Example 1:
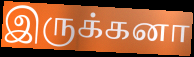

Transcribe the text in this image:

இருக்கனா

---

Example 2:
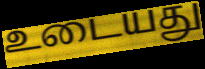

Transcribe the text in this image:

உடையது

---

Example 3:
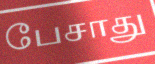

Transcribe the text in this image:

பேசாது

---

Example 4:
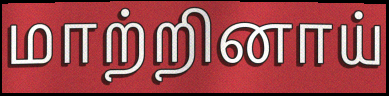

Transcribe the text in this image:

மாற்றினாய்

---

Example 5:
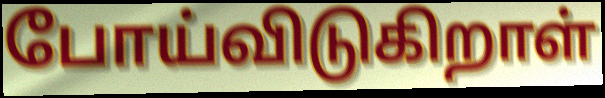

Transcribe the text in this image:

போய்விடுகிறாள்